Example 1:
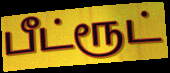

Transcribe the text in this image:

பீட்ரூட்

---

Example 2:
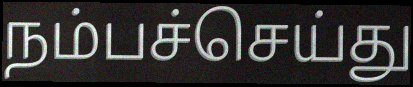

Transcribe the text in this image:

நம்பச்செய்து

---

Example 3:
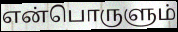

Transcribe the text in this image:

என்பொருளும்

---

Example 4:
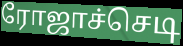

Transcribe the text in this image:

ரோஜாச்செடி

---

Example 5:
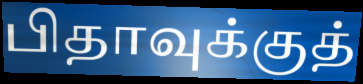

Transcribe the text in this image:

பிதாவுக்குத்